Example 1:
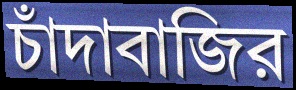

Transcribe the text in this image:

চাঁদাবাজির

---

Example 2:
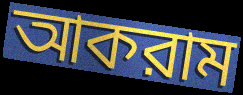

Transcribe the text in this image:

আকরাম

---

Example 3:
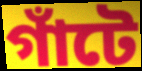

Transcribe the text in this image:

গাঁটে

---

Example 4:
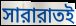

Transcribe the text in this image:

সারারাতই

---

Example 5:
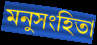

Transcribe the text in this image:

মনুসংহিতা